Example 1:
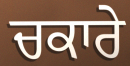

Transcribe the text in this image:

ਚਕਾਰੇ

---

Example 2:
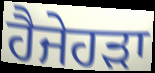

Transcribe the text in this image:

ਹੈਜੇਹੜਾ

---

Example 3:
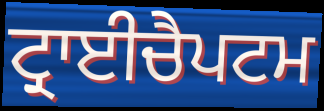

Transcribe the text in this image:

ਟ੍ਰਾਈਚੈਪਟਮ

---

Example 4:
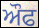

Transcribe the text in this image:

ਔਫ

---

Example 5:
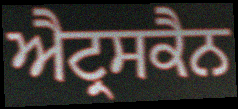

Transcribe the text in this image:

ਐਟ੍ਰਸਕੈਨ